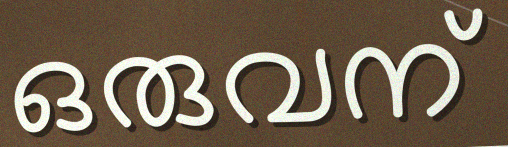
ഒരുവന്